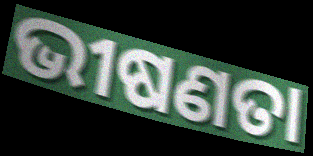
ଭୀଷଣତା